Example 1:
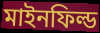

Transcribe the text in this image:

মাইনফিল্ড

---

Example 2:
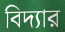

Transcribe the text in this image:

বিদ্যার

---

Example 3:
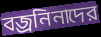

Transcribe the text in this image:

বজ্রনিনাদের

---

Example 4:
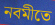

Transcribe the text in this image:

নবমীতে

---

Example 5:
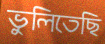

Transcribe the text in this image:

ভুলিতেছি